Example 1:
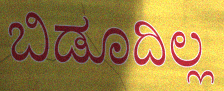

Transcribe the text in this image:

ಬಿಡೂದಿಲ್ಲ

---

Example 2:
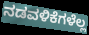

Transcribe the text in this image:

ನಡವಳಿಕೆಗಳೆಲ್ಲ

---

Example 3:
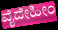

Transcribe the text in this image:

ವೈದೇಹೀಂ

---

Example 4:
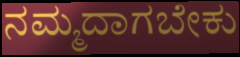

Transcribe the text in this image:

ನಮ್ಮದಾಗಬೇಕು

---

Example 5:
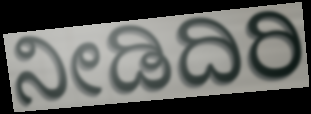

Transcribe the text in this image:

ನೀಡಿದಿರಿ